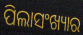
ପିଲାସଂଖ୍ୟାର